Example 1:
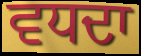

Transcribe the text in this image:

ਵਧਦਾ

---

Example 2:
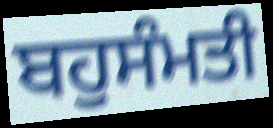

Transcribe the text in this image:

ਬਹੁਸੰਮਤੀ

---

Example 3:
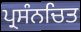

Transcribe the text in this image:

ਪ੍ਰਸੰਨਚਿਤ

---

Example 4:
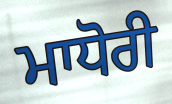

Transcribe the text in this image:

ਮਾਧੋਰੀ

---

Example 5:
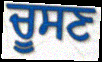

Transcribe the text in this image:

ਚੂਸਣ